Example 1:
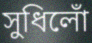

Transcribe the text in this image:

সুধিলোঁ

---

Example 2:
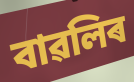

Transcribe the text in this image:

বাৱলিৰ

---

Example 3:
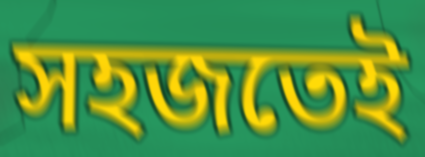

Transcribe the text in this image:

সহজতেই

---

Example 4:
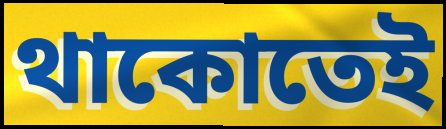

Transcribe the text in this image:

থাকোতেই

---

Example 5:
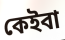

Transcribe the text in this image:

কেইবা